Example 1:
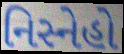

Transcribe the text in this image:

નિસ્નેહો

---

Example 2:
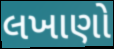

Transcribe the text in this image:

લખાણો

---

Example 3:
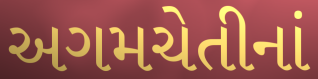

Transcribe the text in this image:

અગમચેતીનાં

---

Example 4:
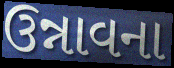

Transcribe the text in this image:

ઉન્નાવના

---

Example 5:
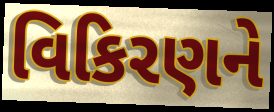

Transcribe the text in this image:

વિકિરણને